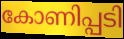
കോണിപ്പടി